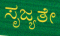
ಸೃಜ್ಯತೇ